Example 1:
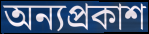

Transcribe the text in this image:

অন্যপ্রকাশ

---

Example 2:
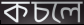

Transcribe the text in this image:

কচলে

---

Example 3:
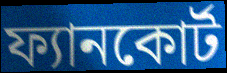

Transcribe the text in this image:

ফ্যানকোর্ট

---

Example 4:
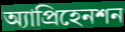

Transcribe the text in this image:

অ্যাপ্রিহেনশন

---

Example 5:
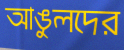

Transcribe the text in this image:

আঙুলদের